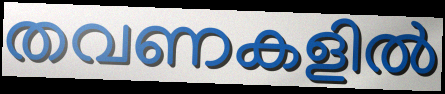
തവണകളിൽ